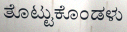
ತೊಟ್ಟುಕೊಂಡಳು